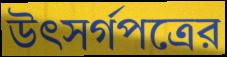
উৎসর্গপত্রের